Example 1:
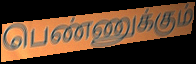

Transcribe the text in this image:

பெண்ணுக்கும்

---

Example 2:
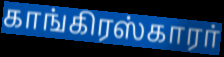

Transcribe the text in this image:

காங்கிரஸ்காரர்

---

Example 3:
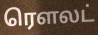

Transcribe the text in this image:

ரௌலட்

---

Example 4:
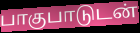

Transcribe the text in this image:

பாகுபாடுடன்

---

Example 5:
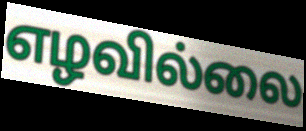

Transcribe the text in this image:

எழவில்லை